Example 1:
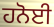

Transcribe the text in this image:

ਹਨੋਈ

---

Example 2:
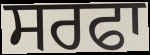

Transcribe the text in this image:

ਸਰਫਾ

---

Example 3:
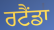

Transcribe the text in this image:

ਰਟੈਂਡਾ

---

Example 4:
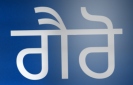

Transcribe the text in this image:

ਗੈਰੋ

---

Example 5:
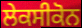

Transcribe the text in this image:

ਲੇਕਸੀਕੋਨ